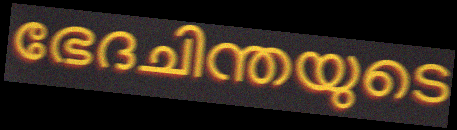
ഭേദചിന്തയുടെ